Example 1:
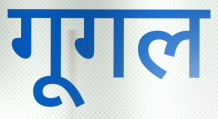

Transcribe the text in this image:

गूगल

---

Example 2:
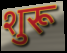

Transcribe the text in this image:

शुरू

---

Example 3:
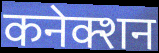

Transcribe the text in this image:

कनेक्शन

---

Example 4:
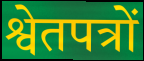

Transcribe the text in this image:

श्वेतपत्रों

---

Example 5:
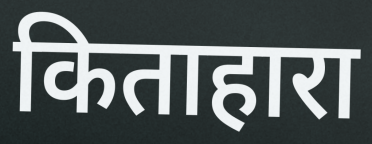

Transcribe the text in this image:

किताहारा